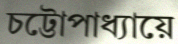
চট্টোপাধ্যায়ে